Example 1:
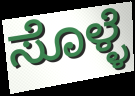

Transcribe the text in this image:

ಸೊಳ್ಳೆ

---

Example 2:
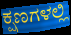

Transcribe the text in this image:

ಕ್ಷಣಗಳಲ್ಲಿ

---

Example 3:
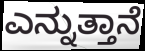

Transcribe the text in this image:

ಎನ್ನುತ್ತಾನೆ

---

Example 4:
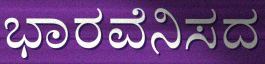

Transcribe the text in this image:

ಭಾರವೆನಿಸದ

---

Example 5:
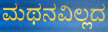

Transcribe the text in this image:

ಮಥನವಿಲ್ಲದ